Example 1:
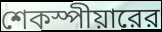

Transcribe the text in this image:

শেকস্পীয়ারের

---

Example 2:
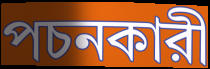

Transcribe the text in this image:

পচনকারী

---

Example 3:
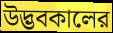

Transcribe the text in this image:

উদ্ভবকালের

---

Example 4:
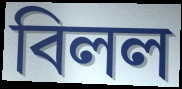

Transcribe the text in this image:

বিলল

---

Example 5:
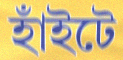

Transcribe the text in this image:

হাঁইটে